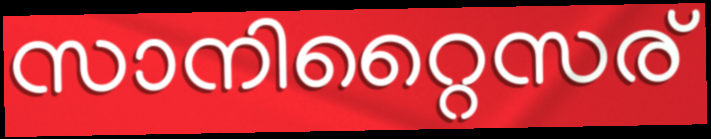
സാനിറ്റൈസര്